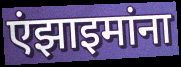
एंझाइमांना